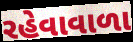
રહેવાવાળા